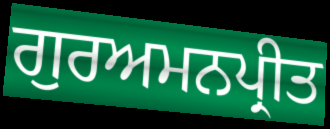
ਗੁਰਅਮਨਪ੍ਰੀਤ